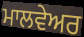
ਮਾਲਵੇਅਰ